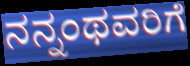
ನನ್ನಂಥವರಿಗೆ